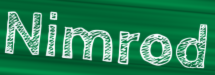
Nimrod